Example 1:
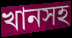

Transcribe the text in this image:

খানসহ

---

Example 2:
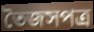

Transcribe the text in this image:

তৈজসপত্র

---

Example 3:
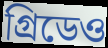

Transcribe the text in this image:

গ্রিডেও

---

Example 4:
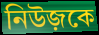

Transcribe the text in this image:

নিউজ়কে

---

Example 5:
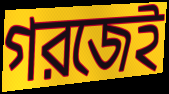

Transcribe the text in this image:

গরজেই